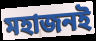
মহাজনই